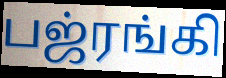
பஜ்ரங்கி